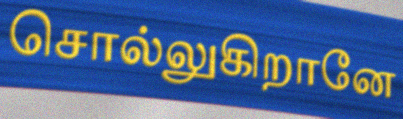
சொல்லுகிறானே